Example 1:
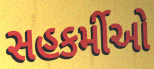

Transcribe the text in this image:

સહકર્મીઓ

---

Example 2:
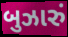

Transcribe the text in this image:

બુઝારું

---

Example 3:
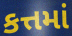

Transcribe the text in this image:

કત્તમાં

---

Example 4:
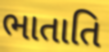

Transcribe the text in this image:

ભાતાતિ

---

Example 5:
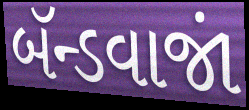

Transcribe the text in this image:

બૅન્ડવાજાં